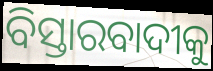
ବିସ୍ତାରବାଦୀକୁ